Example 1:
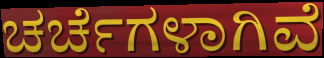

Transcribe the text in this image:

ಚರ್ಚೆಗಳಾಗಿವೆ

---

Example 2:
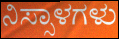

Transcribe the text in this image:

ನಿಸ್ಸಾಳಗಳು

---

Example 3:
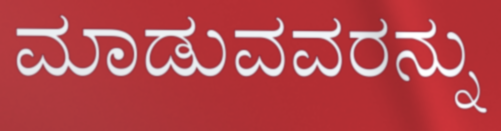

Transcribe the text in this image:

ಮಾಡುವವರನ್ನು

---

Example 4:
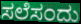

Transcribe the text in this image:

ಸಲೆಸಂದು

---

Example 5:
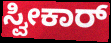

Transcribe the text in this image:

ಸ್ವೀಕಾರ್